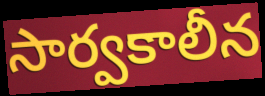
సార్వకాలీన